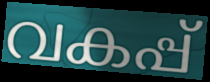
വകപ്പ്